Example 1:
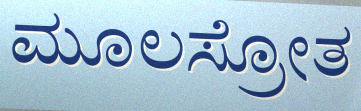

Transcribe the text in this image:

ಮೂಲಸ್ರೋತ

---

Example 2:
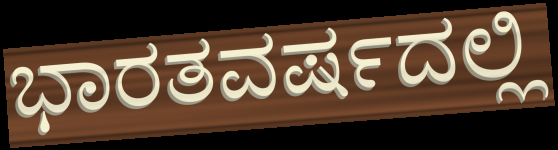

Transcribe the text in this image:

ಭಾರತವರ್ಷದಲ್ಲಿ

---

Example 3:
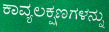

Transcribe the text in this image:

ಕಾವ್ಯಲಕ್ಷಣಗಳನ್ನು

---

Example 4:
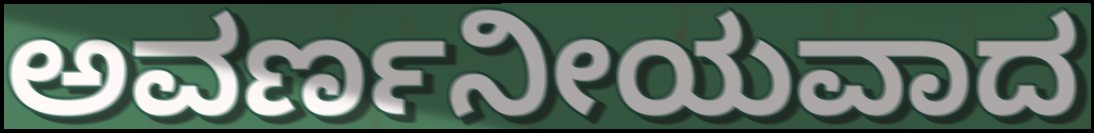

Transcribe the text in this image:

ಅವರ್ಣನೀಯವಾದ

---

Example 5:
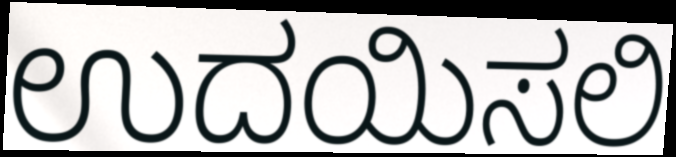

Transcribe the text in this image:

ಉದಯಿಸಲಿ